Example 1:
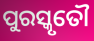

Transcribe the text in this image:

ପୁରସ୍କୃତୌ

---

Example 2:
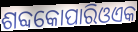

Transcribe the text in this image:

ଶବ୍ଦକୋପାରିଓଏକ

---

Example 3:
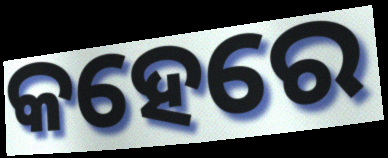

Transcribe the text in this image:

କହେରେ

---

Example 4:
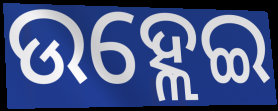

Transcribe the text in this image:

ଉହ୍ଲେଇ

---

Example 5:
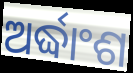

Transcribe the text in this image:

ଅର୍ଦ୍ଧାଂଶ